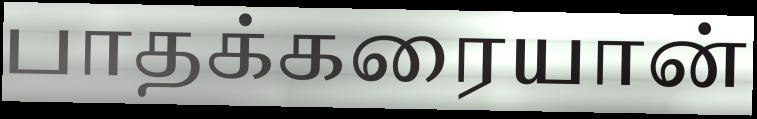
பாதக்கரையான்